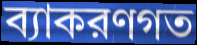
ব্যাকরণগত